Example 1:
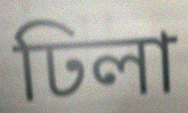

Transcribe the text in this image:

ঢিলা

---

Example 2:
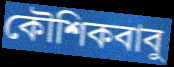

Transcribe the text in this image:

কৌশিকবাবু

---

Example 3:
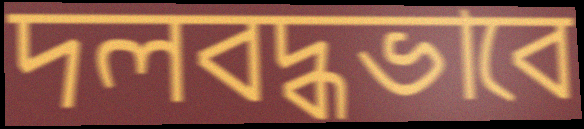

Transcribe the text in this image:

দলবদ্ধভাবে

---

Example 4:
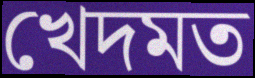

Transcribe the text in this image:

খেদমত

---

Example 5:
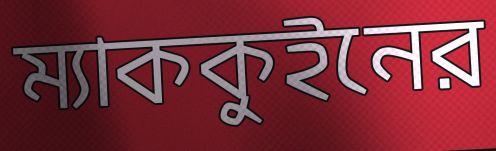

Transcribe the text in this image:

ম্যাককুইনের